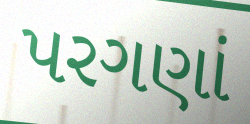
પરગણાં